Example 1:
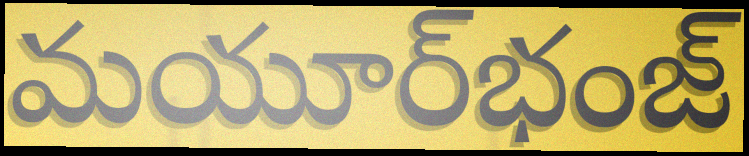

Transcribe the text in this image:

మయూర్‌భంజ్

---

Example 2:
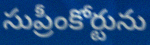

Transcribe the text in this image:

సుప్రీంకోర్టును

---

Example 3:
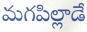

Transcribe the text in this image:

మగపిల్లాడే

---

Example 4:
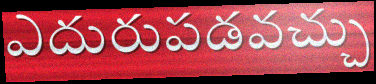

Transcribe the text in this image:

ఎదురుపడవచ్చు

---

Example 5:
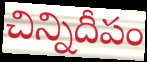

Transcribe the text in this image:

చిన్నిదీపం